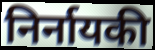
निर्नायकी